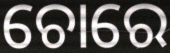
ଚୋରେ